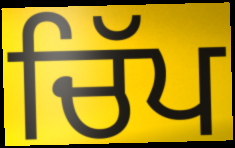
ਚਿੱਪ